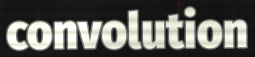
convolution